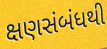
ક્ષણસંબંધથી